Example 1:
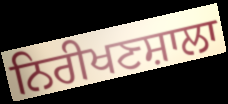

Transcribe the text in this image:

ਨਿਰੀਖਣਸ਼ਾਲਾ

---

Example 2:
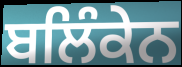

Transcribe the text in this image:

ਬਲਿੰਕੇਨ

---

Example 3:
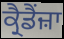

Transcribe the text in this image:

ਕ੍ਰੈਡੈਂਜ਼ਾ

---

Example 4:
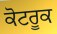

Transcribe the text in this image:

ਕੋਟਰੂਕ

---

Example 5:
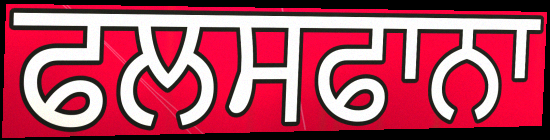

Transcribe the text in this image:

ਫਲਸਫਾਨਾ